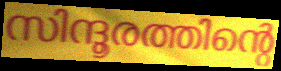
സിന്ദൂരത്തിന്റെ